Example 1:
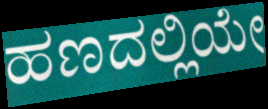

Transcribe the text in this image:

ಹಣದಲ್ಲಿಯೇ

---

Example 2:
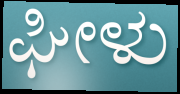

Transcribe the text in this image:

ಘೀಳು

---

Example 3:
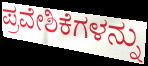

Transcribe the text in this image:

ಪ್ರವೇಶಿಕೆಗಳನ್ನು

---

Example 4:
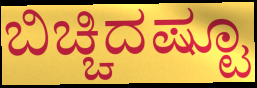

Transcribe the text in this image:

ಬಿಚ್ಚಿದಷ್ಟೂ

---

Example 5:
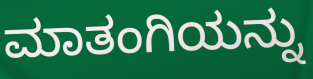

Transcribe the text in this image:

ಮಾತಂಗಿಯನ್ನು